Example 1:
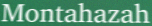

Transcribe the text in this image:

Montahazah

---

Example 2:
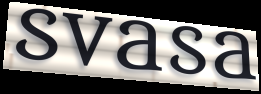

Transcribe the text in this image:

svasa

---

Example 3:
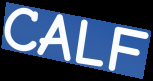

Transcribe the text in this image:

CALF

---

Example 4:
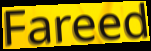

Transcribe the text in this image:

Fareed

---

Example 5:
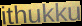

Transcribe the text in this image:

ithukku